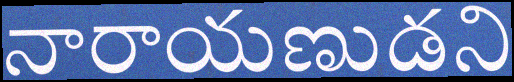
నారాయణుడని